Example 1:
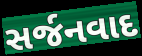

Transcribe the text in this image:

સર્જનવાદ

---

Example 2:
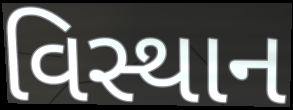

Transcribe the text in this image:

વિસ્થાન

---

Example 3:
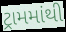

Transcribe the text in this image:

ટ્રામમાંથી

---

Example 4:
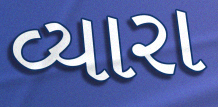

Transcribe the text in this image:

વ્યારા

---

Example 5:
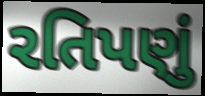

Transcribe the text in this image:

રતિપણું